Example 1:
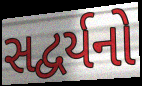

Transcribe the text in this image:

સદ્વર્યનો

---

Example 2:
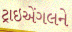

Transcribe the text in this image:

ટ્રાઇએંગલને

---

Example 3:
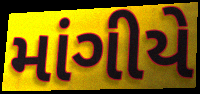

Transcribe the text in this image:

માંગીયે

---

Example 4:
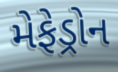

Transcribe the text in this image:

મેફેડ્રોન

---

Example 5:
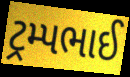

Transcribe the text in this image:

ટ્રમ્પભાઈ